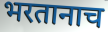
भरतानाच